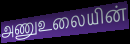
அணுஉலையின்